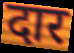
दार